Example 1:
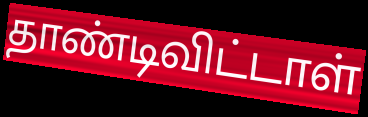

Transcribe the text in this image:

தாண்டிவிட்டாள்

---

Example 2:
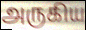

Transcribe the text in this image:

அருகிய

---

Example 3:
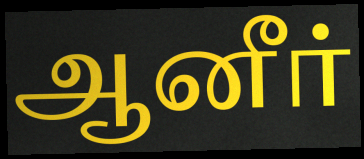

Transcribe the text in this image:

ஆனீர்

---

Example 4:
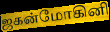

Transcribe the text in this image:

ஜகன்மோகினி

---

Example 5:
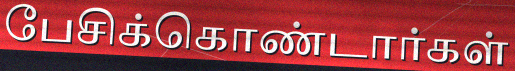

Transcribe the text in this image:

பேசிக்கொண்டார்கள்